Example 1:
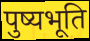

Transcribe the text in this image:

पुष्यभूति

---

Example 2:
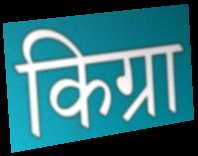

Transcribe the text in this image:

किग्रा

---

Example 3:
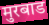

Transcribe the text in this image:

मुरबाड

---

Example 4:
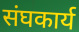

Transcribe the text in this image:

संघकार्य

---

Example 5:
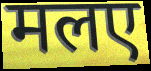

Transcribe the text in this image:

मलए